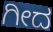
ಗೀದ